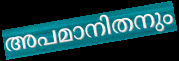
അപമാനിതനും